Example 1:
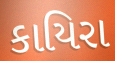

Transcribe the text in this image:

કાયિરા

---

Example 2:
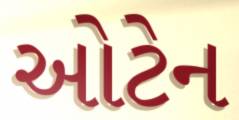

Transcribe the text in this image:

ઓટેન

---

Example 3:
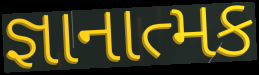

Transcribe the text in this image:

જ્ઞાનાત્મક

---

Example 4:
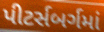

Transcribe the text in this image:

પીટર્સબર્ગમાં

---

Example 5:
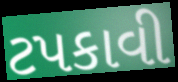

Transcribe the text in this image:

ટપકાવી